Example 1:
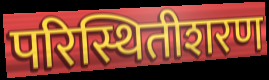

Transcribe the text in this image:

परिस्थितीशरण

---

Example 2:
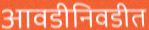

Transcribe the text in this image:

आवडीनिवडीत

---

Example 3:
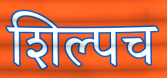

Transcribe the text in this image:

शिल्पच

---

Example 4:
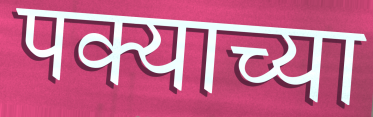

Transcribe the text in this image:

पक्याच्या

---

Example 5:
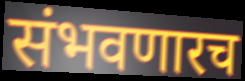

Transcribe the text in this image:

संभवणारच